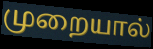
முறையால்